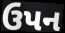
ઉપન